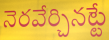
నెరవేర్చినట్టే